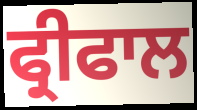
ਫ੍ਰੀਫਾਲ